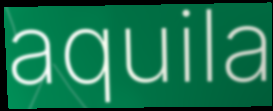
aquila